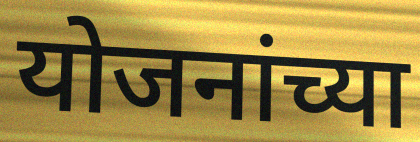
योजनांच्या